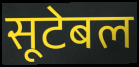
सूटेबल